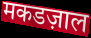
मकडज़ाल